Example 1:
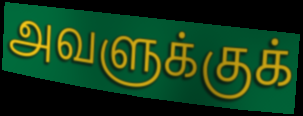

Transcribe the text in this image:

அவளுக்குக்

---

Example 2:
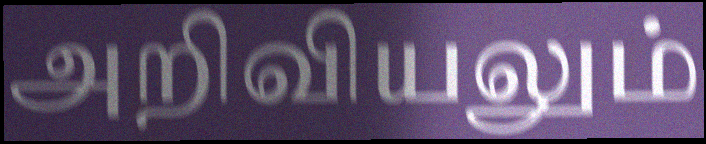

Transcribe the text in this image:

அறிவியலும்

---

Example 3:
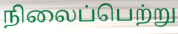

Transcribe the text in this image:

நிலைப்பெற்று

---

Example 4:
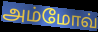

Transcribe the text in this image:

அம்மோவ்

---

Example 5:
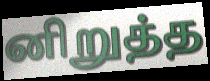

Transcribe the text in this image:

னிறுத்த